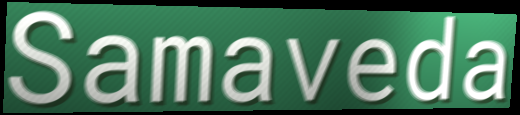
Samaveda